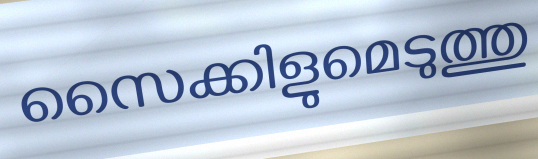
സൈക്കിളുമെടുത്തു